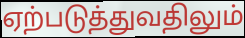
ஏற்படுத்துவதிலும்